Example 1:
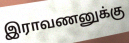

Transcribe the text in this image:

இராவணனுக்கு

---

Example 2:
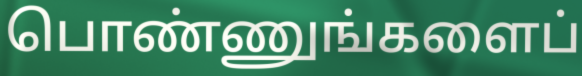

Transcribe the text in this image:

பொண்ணுங்களைப்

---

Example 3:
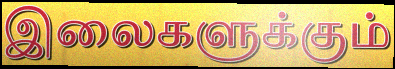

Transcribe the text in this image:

இலைகளுக்கும்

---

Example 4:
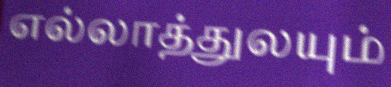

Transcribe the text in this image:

எல்லாத்துலயும்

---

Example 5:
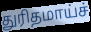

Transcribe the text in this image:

துரிதமாய்ச்